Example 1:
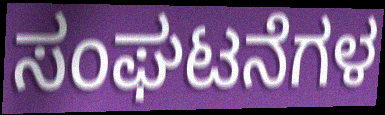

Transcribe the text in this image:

ಸಂಘಟನೆಗಳ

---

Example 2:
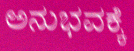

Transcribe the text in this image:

ಅನುಭವಕ್ಕೆ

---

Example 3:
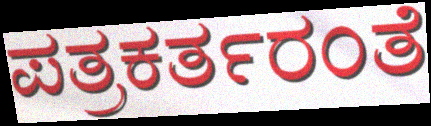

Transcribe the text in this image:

ಪತ್ರಕರ್ತರಂತೆ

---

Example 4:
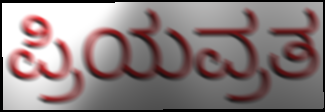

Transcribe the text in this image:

ಪ್ರಿಯವ್ರತ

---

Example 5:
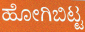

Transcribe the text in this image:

ಹೋಗಿಬಿಟ್ಟ